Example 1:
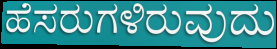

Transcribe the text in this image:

ಹೆಸರುಗಳಿರುವುದು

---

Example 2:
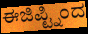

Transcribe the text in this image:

ಈಜಿಪ್ಟ್ನಿಂದ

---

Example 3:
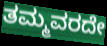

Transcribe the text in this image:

ತಮ್ಮವರದೇ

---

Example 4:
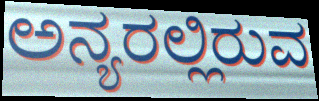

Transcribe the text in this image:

ಅನ್ಯರಲ್ಲಿರುವ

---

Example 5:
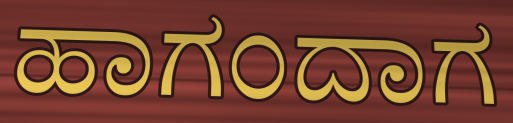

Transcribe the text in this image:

ಹಾಗಂದಾಗ